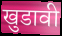
खुडावी